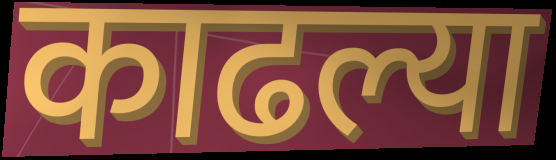
काढल्या